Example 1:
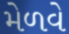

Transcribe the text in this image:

મેળવે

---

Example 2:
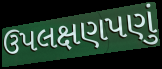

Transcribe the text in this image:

ઉપલક્ષણપણું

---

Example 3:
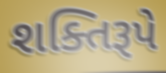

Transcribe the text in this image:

શક્તિરૂપે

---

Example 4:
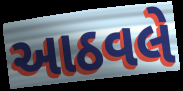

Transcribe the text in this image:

આઠવલે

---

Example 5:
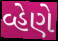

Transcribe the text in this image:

વ્હેણે